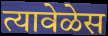
त्यावेळेस